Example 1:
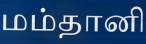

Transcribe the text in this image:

மம்தானி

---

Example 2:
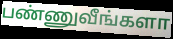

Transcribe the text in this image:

பண்ணுவீங்களா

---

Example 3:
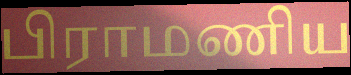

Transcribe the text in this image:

பிராமணிய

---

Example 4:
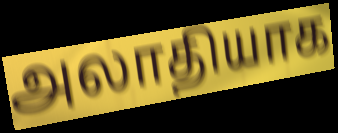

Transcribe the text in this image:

அலாதியாக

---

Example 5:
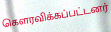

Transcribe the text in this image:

கௌரவிக்கப்பட்டனர்